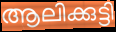
ആലിക്കുട്ടി